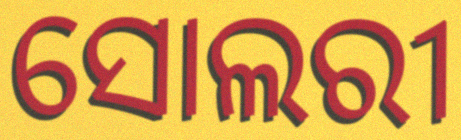
ସୋଲରୀ